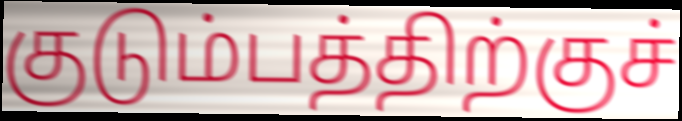
குடும்பத்திற்குச்